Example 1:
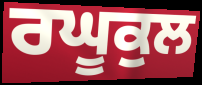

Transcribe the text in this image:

ਰਘੂਕੁਲ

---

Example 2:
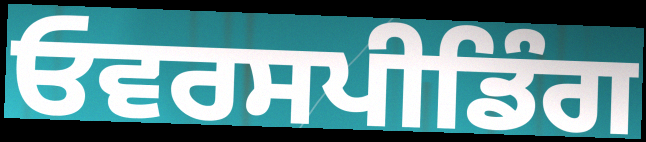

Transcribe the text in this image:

ਓਵਰਸਪੀਡਿੰਗ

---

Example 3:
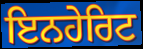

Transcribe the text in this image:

ਇਨਹੇਰਿਟ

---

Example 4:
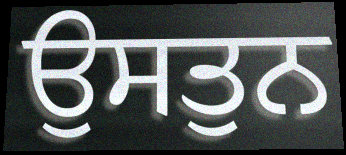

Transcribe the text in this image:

ਉਸਤੁਨ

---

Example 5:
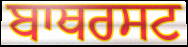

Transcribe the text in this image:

ਬਾਥਰਸਟ